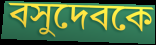
বসুদেবকে